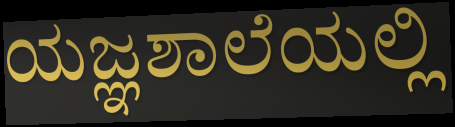
ಯಜ್ಞಶಾಲೆಯಲ್ಲಿ